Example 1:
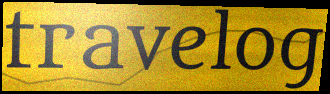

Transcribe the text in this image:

travelog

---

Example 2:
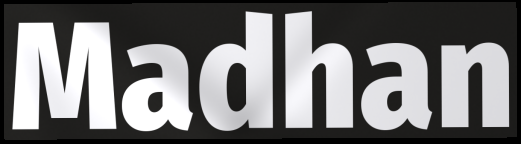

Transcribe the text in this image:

Madhan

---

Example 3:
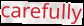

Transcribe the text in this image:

carefully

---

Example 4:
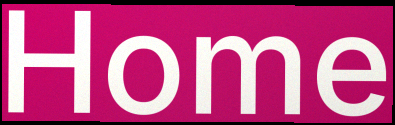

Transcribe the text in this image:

Home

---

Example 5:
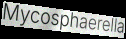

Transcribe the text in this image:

Mycosphaerella